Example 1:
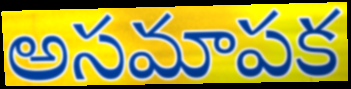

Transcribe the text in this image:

అసమాపక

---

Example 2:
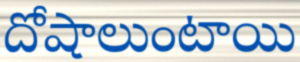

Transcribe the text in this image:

దోషాలుంటాయి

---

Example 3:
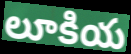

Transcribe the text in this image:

లూకియ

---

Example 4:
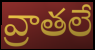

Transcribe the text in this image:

వ్రాతలే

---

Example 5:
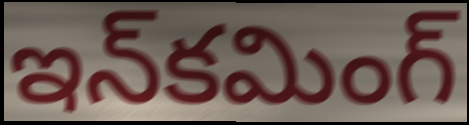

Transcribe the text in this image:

ఇన్‌కమింగ్